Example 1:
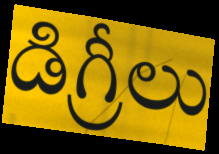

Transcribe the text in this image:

డిగ్రీలు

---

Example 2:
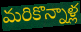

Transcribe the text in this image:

మరికొన్నాళ్ల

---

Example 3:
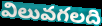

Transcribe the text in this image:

విలువగలది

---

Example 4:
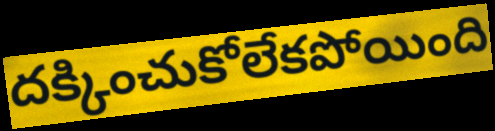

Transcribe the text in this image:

దక్కించుకోలేకపోయింది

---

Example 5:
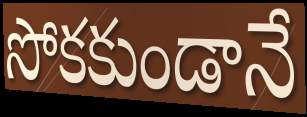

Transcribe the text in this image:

సోకకుండానే